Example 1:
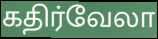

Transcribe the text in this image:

கதிர்வேலா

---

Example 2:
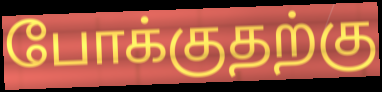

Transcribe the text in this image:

போக்குதற்கு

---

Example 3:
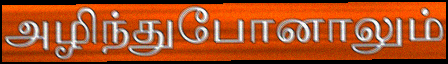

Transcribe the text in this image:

அழிந்துபோனாலும்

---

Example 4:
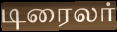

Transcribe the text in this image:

டிரைலர்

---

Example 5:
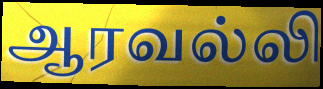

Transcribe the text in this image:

ஆரவல்லி